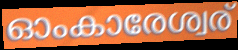
ഓംകാരേശ്വര്